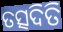
ତତ୍ସଦିତି